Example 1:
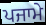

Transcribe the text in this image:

ਪਜਾਮੇ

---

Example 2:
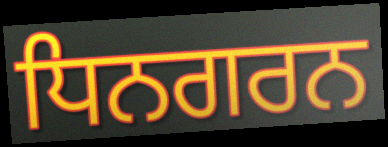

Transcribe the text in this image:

ਧਿਨਗਰਨ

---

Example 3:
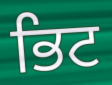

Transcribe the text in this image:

ਭਿਟ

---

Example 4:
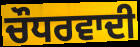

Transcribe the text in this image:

ਚੌਧਰਵਾਦੀ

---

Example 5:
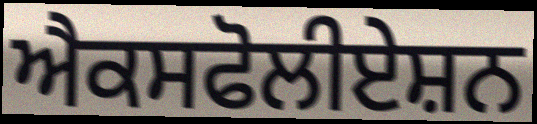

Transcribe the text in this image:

ਐਕਸਫੋਲੀਏਸ਼ਨ